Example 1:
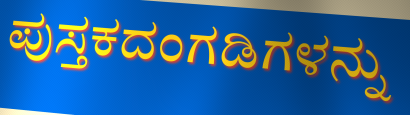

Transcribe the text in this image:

ಪುಸ್ತಕದಂಗಡಿಗಳನ್ನು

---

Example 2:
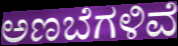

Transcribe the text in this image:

ಅಣಬೆಗಳಿವೆ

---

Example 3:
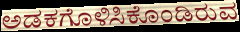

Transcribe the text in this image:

ಅಡಕಗೊಳಿಸಿಕೊಂಡಿರುವ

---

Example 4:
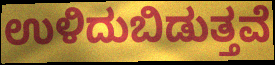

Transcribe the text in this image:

ಉಳಿದುಬಿಡುತ್ತವೆ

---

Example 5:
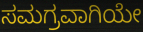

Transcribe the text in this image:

ಸಮಗ್ರವಾಗಿಯೇ